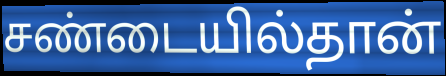
சண்டையில்தான்